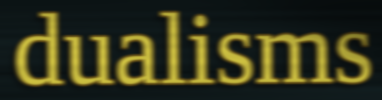
dualisms